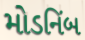
મોડનિંબ